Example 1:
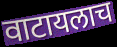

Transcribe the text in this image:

वाटायलाच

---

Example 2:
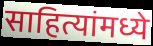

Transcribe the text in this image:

साहित्यांमध्ये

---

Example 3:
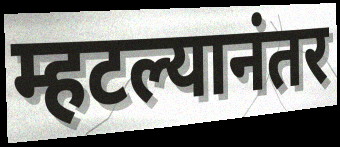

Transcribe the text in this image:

म्हटल्यानंतर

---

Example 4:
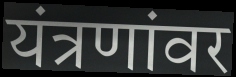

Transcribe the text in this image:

यंत्रणांवर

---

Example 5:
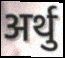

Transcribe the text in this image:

अर्थु